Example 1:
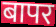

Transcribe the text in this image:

बापर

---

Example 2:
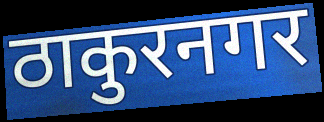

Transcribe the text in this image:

ठाकुरनगर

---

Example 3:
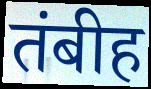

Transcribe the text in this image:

तंबीह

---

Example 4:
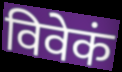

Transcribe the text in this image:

विवेकं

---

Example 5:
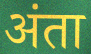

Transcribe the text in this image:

अंता